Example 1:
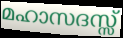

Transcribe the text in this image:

മഹാസദസ്സ്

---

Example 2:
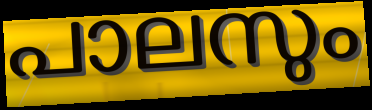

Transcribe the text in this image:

പാലസും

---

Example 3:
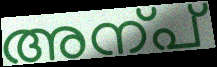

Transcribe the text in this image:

അന്പ്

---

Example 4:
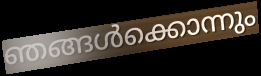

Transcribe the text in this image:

ഞങ്ങൾക്കൊന്നും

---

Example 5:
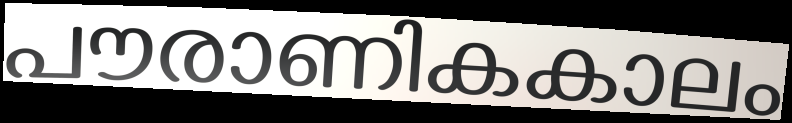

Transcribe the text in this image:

പൗരാണികകാലം